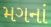
મગનાં